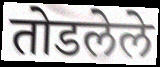
तोडलेले